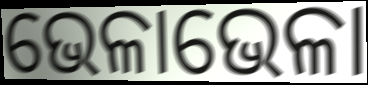
ଭେଳାଭେଳା